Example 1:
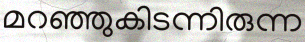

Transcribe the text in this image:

മറഞ്ഞുകിടന്നിരുന്ന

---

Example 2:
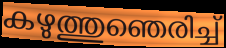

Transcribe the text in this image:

കഴുത്തുഞെരിച്ച്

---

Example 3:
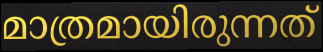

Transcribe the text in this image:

മാത്രമായിരുന്നത്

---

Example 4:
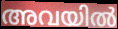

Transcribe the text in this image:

അവയിൽ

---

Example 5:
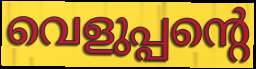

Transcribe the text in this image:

വെളുപ്പന്റെ